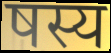
षस्य